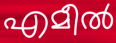
എമീൽ